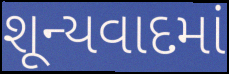
શૂન્યવાદમાં